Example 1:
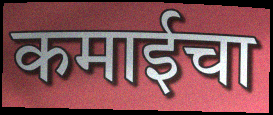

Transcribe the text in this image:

कमाईचा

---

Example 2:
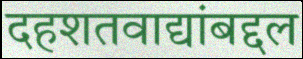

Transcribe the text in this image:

दहशतवाद्यांबद्दल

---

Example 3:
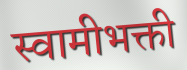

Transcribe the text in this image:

स्वामीभक्ती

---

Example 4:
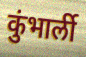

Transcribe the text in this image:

कुंभार्ली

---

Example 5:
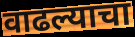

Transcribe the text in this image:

वाढल्याचा